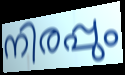
നിരപ്പും